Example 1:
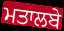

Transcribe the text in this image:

ਮਤਾਲਬੇ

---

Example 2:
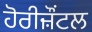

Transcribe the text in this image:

ਹੋਰੀਜ਼ੌਂਟਲ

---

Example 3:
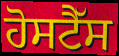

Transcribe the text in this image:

ਹੋਸਟੈੱਸ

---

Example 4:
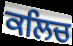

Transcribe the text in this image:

ਕਲਿਚ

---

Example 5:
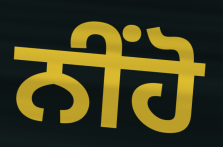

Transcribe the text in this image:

ਨੀਂਹੋ